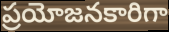
ప్రయోజనకారిగా